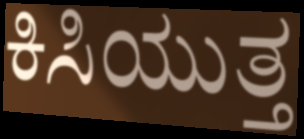
ಕಿಸಿಯುತ್ತ